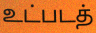
உட்படத்